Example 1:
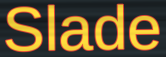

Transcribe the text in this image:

Slade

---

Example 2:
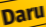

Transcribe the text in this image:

Daru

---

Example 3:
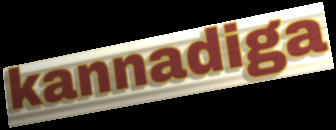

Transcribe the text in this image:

kannadiga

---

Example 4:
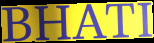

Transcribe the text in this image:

BHATI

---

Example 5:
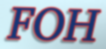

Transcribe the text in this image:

FOH